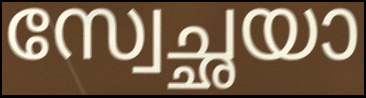
സ്വേച്ഛയാ